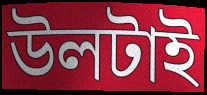
উলটাই